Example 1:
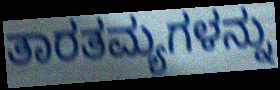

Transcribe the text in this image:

ತಾರತಮ್ಯಗಳನ್ನು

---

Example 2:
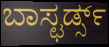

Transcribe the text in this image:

ಬಾಸ್ಟರ್ಡ್ಸ್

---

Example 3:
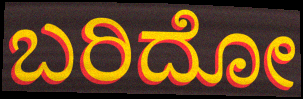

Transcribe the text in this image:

ಬರಿದೋ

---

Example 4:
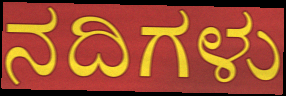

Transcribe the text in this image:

ನದಿಗಳು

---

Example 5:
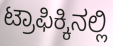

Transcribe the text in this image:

ಟ್ರಾಫಿಕ್ಕಿನಲ್ಲಿ